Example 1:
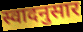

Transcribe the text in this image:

स्वादनुसार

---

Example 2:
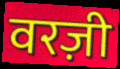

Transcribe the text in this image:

वरज़ी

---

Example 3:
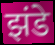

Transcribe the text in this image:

झंडे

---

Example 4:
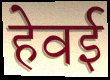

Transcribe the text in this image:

हेवई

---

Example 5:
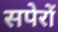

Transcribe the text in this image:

सपेरों